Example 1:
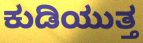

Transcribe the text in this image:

ಕುಡಿಯುತ್ತ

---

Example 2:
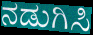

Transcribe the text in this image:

ನಡುಗಿಸಿ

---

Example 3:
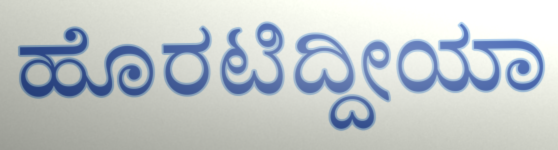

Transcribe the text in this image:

ಹೊರಟಿದ್ದೀಯಾ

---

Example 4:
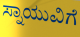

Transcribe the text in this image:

ಸ್ನಾಯುವಿಗೆ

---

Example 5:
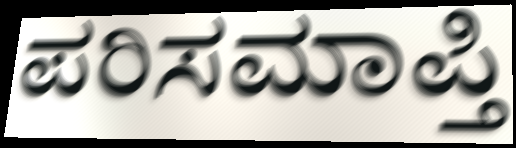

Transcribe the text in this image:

ಪರಿಸಮಾಪ್ತಿ